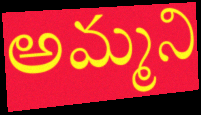
అమ్మని